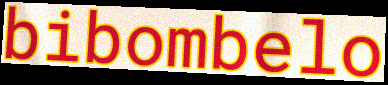
bibombelo